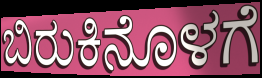
ಬಿರುಕಿನೊಳಗೆ